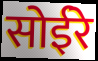
सोईरे